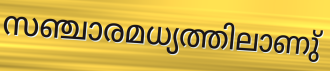
സഞ്ചാരമധ്യത്തിലാണു്